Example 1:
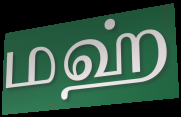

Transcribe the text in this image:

மஹ்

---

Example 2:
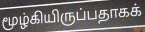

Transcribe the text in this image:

மூழ்கியிருப்பதாகக்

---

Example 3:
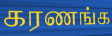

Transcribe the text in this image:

கரணங்க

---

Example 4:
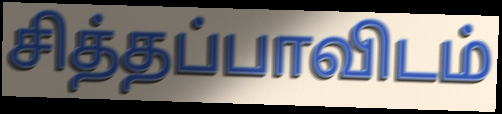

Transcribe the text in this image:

சித்தப்பாவிடம்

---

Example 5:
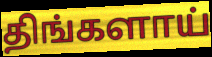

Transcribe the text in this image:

திங்களாய்